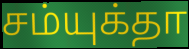
சம்யுக்தா